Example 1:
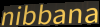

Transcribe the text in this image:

nibbana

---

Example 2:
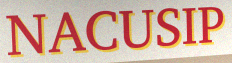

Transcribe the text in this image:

NACUSIP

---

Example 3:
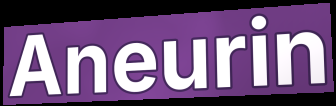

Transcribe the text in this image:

Aneurin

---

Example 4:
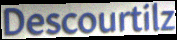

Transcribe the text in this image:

Descourtilz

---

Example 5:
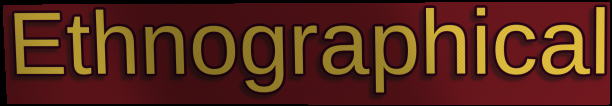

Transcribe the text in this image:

Ethnographical